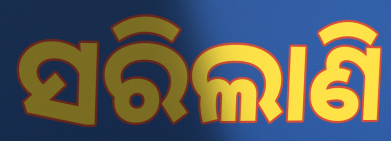
ସରିଲାଣି